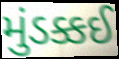
મુંડક્કઈ